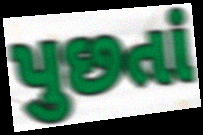
પુછતાં